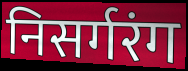
निसर्गरंग